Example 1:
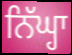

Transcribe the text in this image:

ਨਿੱਘ੍ਹਾ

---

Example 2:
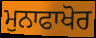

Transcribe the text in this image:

ਮੁਨਾਫਾਖੋਰ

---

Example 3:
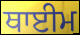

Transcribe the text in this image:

ਥਾਈਮ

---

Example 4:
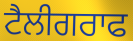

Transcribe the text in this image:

ਟੈਲੀਗਰਾਫ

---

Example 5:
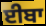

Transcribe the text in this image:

ਈਬਾ